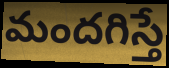
మందగిస్తే